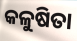
କଳୁଷିତା